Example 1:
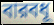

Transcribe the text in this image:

বারবধূ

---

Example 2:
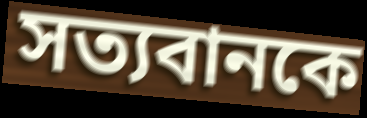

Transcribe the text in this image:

সত্যবানকে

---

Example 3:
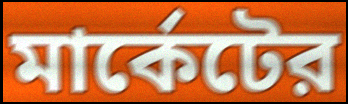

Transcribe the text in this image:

মার্কেটের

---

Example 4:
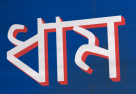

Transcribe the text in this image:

ধাম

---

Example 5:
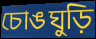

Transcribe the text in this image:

চোঙঘুড়ি